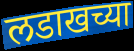
लडाखच्या